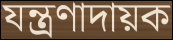
যন্ত্রণাদায়ক